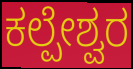
ಕಲ್ಪೇಶ್ವರ